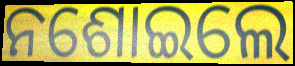
ନଶୋଇଲେ